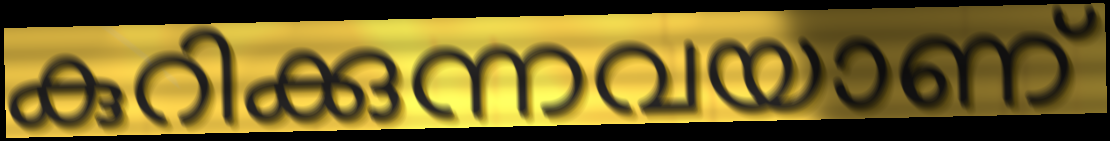
കുറിക്കുന്നവയാണ്